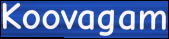
Koovagam